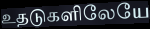
உதடுகளிலேயே